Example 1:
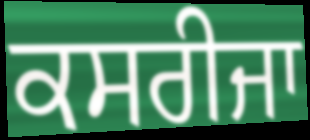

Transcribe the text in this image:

ਕਸਰੀਜਾ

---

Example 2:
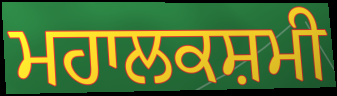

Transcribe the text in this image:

ਮਹਾਲਕਸ਼ਮੀ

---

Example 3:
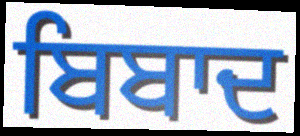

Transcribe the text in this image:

ਬਿਬਾਦ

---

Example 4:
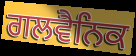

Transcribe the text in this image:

ਗਲਵੈਨਿਕ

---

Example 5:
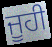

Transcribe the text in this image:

ਜੂਹੀ